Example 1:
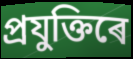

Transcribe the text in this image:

প্ৰযুক্তিৰে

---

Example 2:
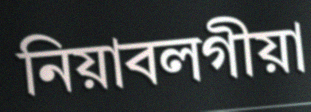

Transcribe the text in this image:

নিয়াবলগীয়া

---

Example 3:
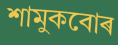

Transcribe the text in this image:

শামুকবোৰ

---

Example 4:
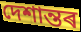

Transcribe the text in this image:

দেশান্তৰ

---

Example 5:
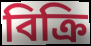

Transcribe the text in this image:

বিক্ৰি